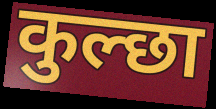
कुल्छा